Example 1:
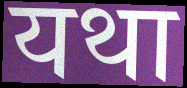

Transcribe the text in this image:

यथा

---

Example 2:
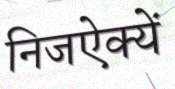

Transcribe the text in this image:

निजऐक्यें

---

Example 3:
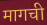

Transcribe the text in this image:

मागची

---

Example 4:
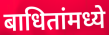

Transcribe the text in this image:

बाधितांमध्ये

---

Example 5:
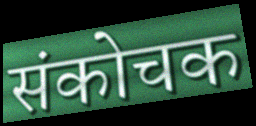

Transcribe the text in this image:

संकोचक